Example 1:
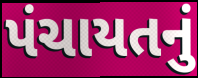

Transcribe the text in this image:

પંચાયતનું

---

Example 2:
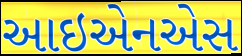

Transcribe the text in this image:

આઇએનએસ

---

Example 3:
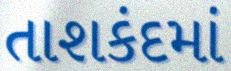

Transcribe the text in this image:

તાશકંદમાં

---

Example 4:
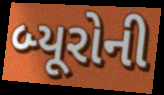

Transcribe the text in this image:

બ્યૂરોની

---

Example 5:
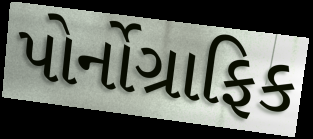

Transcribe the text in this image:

પોર્નોગ્રાફિક